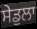
ਸੇਡੁਲਾ